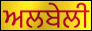
ਅਲਬੇਲੀ